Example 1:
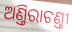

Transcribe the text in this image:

ଅଣ୍ତିରାଚଣ୍ତୀ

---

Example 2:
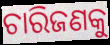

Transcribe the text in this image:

ଚାରିଜଣକୁ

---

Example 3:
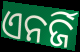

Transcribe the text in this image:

ଏନର୍ଜି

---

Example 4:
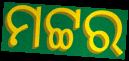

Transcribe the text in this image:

ମଟ୍ଟର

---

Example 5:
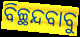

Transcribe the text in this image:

ବିଚ୍ଛନ୍ଦବାବୁ